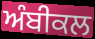
ਅੰਬੀਕਲ